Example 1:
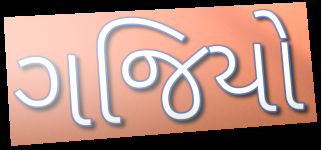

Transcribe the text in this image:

ગજિયો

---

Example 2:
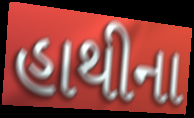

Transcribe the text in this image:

હાથીના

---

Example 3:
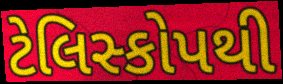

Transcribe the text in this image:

ટેલિસ્કોપથી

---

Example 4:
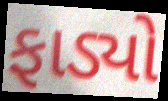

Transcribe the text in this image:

ફાડ્યો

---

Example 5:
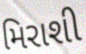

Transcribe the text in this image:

મિરાશી